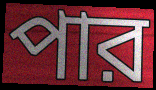
পার